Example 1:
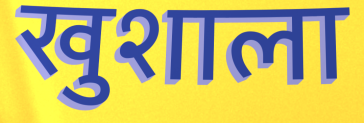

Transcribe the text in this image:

खुशाला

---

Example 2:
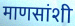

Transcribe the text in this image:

माणसांशी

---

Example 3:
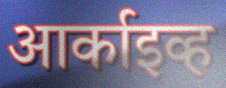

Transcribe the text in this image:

आर्काइव्ह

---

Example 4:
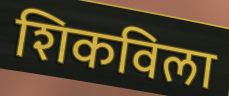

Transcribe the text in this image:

शिकविला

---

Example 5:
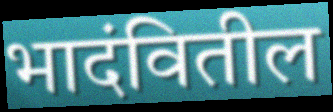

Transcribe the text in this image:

भादंवितील